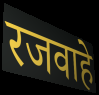
रजवाहे